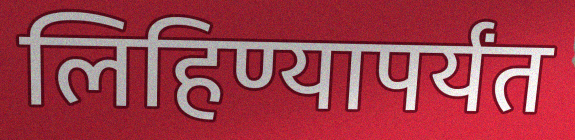
लिहिण्यापर्यंत